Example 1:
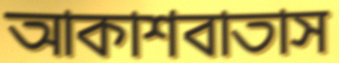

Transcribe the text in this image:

আকাশবাতাস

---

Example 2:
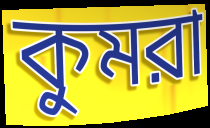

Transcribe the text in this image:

কুমরা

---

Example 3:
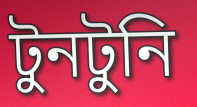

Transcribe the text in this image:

টুনটুনি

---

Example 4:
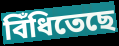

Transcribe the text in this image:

বিঁধিতেছে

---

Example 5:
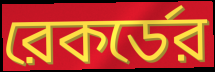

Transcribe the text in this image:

রেকর্ডের